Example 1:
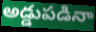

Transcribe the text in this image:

అడ్డుపడినా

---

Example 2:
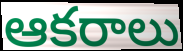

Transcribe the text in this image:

ఆకరాలు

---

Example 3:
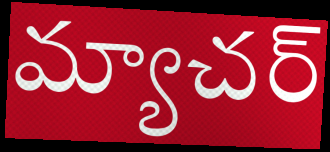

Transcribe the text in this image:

మ్యాచర్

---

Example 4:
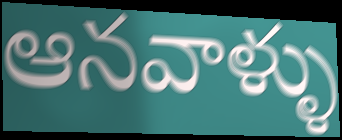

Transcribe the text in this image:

ఆనవాళ్ళు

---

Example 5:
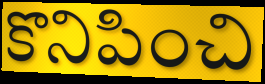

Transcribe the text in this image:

కొనిపించి